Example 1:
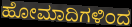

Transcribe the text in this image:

ಹೋಮಾದಿಗಳಿಂದ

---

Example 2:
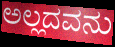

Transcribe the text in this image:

ಅಲ್ಲದವನು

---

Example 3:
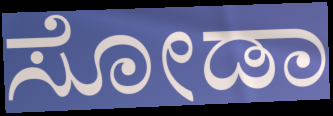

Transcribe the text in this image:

ಸೋಡಾ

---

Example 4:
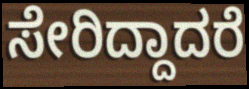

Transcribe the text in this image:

ಸೇರಿದ್ದಾದರೆ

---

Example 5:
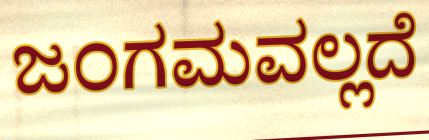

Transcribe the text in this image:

ಜಂಗಮವಲ್ಲದೆ